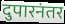
दुपारनंतर